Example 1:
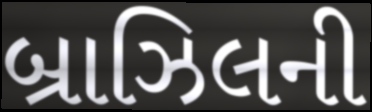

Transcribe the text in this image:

બ્રાઝિલની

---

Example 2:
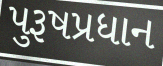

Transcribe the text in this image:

પુરૂષપ્રધાન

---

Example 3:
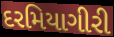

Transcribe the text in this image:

દરમિયાગીરી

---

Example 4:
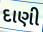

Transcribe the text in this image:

દાણી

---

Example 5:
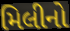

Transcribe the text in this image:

મિલીનો